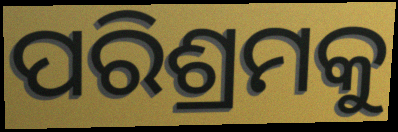
ପରିଶ୍ରମକୁ